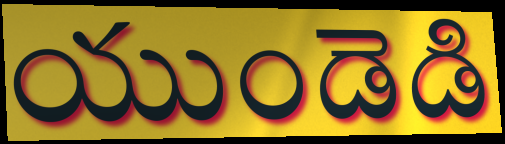
యుండెడి